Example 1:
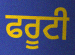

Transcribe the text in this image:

ਫਰੂਟੀ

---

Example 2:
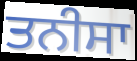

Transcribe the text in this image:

ਤਨੀਸਾ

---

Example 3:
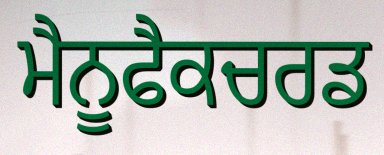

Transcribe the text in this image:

ਮੈਨੂਫੈਕਚਰਡ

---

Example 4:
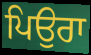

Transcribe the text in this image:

ਪਿਉਰਾ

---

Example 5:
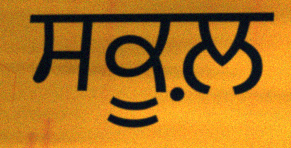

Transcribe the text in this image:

ਸਕੂਲ਼